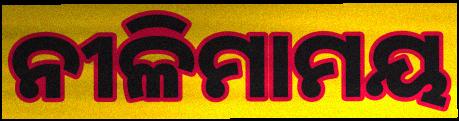
ନୀଳିମାମୟ